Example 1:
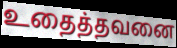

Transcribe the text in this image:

உதைத்தவனை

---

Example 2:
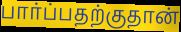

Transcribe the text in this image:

பார்ப்பதற்குதான்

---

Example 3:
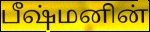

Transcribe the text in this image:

பீஷ்மனின்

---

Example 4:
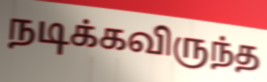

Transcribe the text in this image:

நடிக்கவிருந்த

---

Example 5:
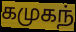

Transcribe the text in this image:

கமுகந்